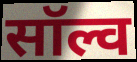
सॉल्व